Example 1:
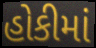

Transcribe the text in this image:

હોકીમાં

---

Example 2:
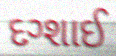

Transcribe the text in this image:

દગ્શાઈ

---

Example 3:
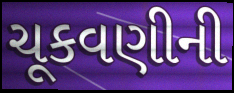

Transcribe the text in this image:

ચૂકવણીની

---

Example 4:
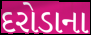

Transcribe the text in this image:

દરોડાના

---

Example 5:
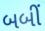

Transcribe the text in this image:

બબીં